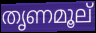
തൃണമൂല്